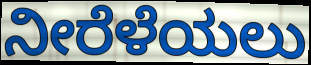
ನೀರೆಳೆಯಲು